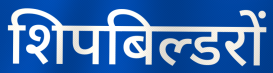
शिपबिल्डरों